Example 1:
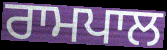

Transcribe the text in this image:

ਰਾਮਪਾਲ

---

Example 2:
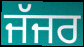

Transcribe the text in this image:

ਜੱਜਰ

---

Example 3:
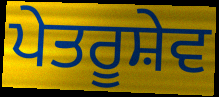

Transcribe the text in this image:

ਪੇਤਰੂਸ਼ੇਵ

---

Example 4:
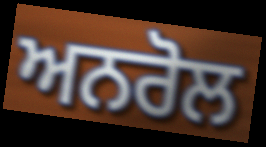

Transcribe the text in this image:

ਅਨਰੋਲ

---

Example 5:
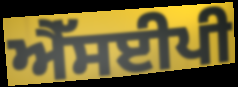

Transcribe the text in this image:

ਐੱਸਈਪੀ